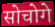
सोचोगे